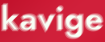
kavige